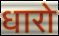
धारो